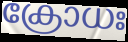
ക്രോധഃ